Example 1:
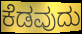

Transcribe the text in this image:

ಕೆಡವುದು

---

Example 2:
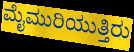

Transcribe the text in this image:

ಮೈಮುರಿಯುತ್ತಿರು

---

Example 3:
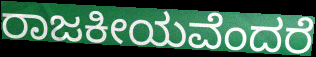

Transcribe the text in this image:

ರಾಜಕೀಯವೆಂದರೆ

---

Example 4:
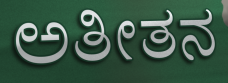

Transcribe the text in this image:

ಅತೀತನ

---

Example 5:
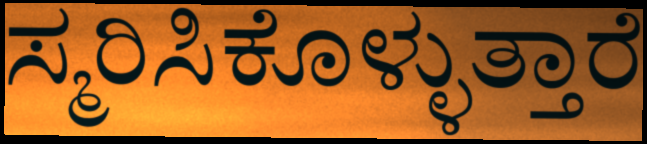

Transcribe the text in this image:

ಸ್ಮರಿಸಿಕೊಳ್ಳುತ್ತಾರೆ